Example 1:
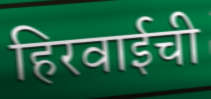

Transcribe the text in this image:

हिरवाईची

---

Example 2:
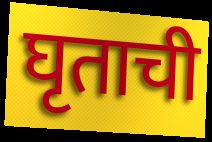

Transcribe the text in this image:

घृताची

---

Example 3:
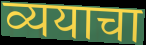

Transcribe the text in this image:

व्ययाचा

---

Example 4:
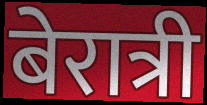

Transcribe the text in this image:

बेरात्री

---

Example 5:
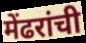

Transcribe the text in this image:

मेंढरांची